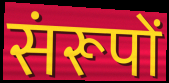
संरूपों